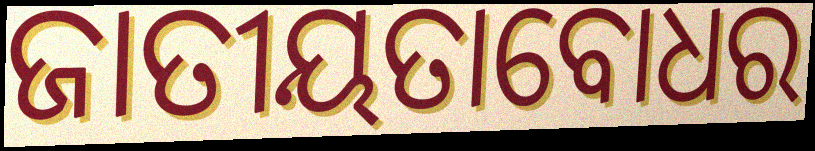
ଜାତୀୟତାବୋଧର